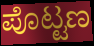
ಪೊಟ್ಟಣ